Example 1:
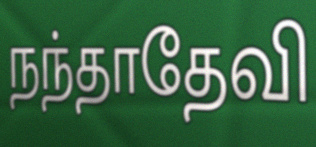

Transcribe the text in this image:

நந்தாதேவி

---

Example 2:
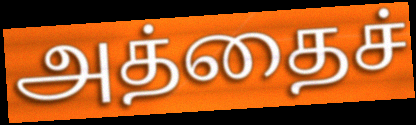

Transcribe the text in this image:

அத்தைச்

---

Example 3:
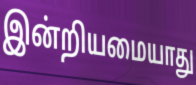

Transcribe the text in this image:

இன்றியமையாது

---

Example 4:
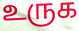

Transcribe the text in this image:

உருக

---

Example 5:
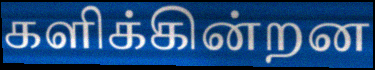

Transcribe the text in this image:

களிக்கின்றன